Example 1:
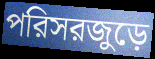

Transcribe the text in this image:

পরিসরজুড়ে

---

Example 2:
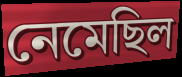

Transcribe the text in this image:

নেমেছিল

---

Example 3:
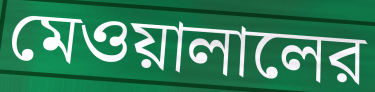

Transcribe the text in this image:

মেওয়ালালের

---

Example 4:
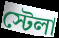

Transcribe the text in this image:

স্টেলা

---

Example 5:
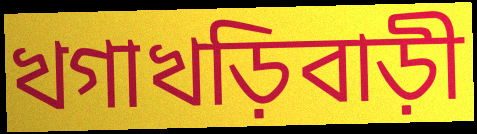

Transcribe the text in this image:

খগাখড়িবাড়ী